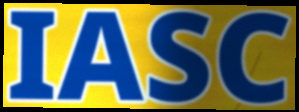
IASC